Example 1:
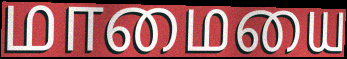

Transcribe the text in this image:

மாமையை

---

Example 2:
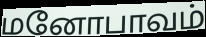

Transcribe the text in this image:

மனோபாவம்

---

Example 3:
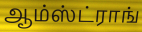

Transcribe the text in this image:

ஆம்ஸ்ட்ராங்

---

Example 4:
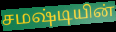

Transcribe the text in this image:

சமஷ்டியின்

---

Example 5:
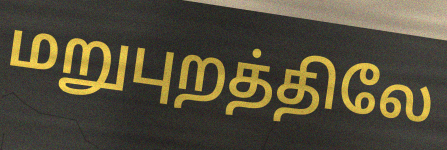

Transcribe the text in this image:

மறுபுறத்திலே